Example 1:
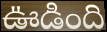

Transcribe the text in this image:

ఊడింది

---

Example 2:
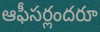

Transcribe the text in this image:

ఆఫీసర్లందరూ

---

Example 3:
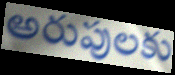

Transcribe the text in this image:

అరుపులకు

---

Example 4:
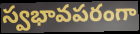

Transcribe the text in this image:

స్వభావపరంగా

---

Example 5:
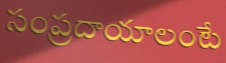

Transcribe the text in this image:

సంప్రదాయాలంటే